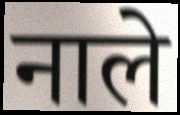
नाले